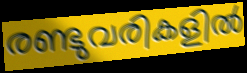
രണ്ടുവരികളിൽ